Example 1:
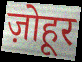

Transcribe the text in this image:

ज़ोहूर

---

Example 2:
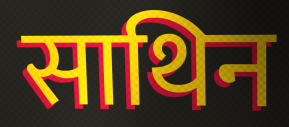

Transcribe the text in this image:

साथिन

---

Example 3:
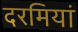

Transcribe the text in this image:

दरमियां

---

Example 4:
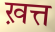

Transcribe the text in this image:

ख़त्त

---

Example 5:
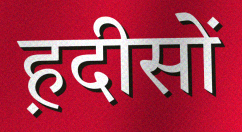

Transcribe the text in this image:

ह़दीसों